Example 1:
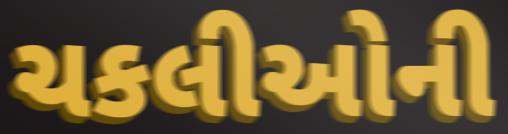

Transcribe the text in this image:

ચકલીઓની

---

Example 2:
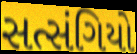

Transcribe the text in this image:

સત્સંગિયો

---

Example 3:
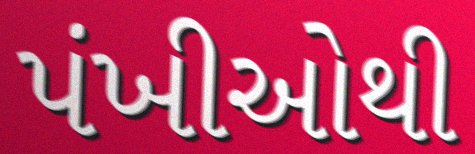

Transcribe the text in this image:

પંખીઓથી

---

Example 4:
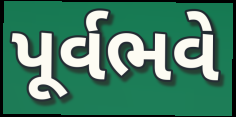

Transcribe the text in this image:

પૂર્વભવે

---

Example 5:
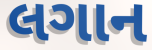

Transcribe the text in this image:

લગાન